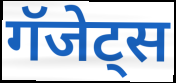
गॅजेट्स